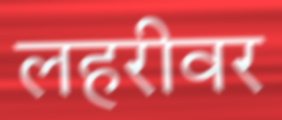
लहरीवर